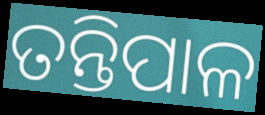
ତନ୍ତିପାଳ